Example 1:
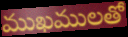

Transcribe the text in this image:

ముఖములతో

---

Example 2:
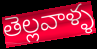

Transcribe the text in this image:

తెల్లవాళ్ళ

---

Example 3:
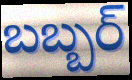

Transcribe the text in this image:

బబ్బర్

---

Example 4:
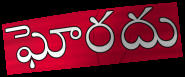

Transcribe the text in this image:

ఘోరదు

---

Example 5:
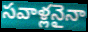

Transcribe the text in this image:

సవాళ్లనైనా